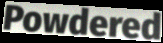
Powdered